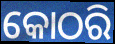
କୋଠରି